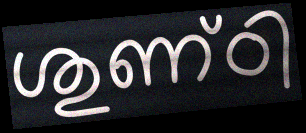
ശുണ്‌ഠി